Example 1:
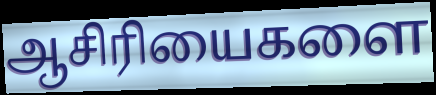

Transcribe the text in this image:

ஆசிரியைகளை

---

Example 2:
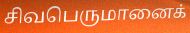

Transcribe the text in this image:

சிவபெருமானைக்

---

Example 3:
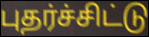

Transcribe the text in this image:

புதர்ச்சிட்டு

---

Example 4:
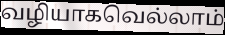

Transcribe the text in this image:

வழியாகவெல்லாம்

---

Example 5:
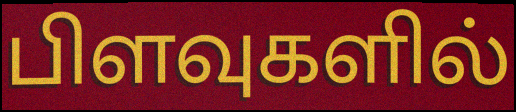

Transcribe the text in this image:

பிளவுகளில்